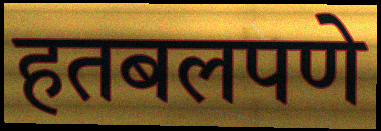
हतबलपणे